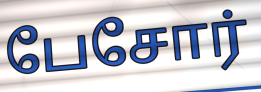
பேசோர்